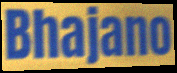
Bhajano